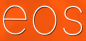
eos